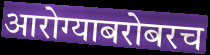
आरोग्याबरोबरच